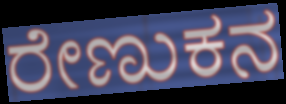
ರೇಣುಕನ